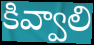
కివ్వాలి